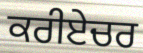
ਕਰੀਏਚਰ